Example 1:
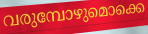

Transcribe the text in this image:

വരുമ്പോഴുമൊക്കെ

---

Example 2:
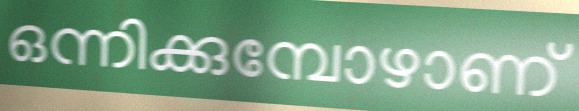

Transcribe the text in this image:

ഒന്നിക്കുമ്പോഴാണ്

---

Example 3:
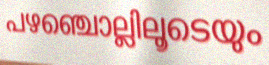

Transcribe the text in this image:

പഴഞ്ചൊല്ലിലൂടെയും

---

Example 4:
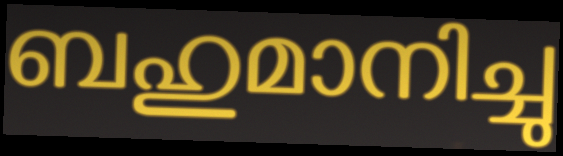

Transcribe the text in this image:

ബഹുമാനിച്ചു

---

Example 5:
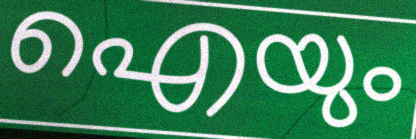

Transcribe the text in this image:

ഐയും